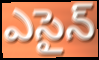
ఎసైన్